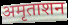
अमृताशन